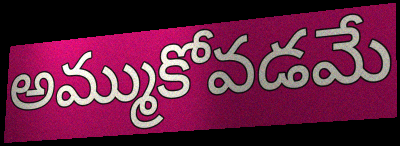
అమ్ముకోవడమే